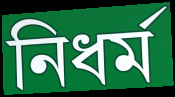
নিধর্ম